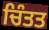
ਚਿੰਤਤ